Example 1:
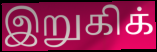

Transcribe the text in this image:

இறுகிக்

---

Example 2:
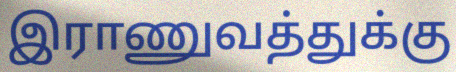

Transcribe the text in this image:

இராணுவத்துக்கு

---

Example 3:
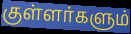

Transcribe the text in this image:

குள்ளர்களும்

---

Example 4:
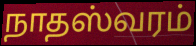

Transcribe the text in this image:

நாதஸ்வரம்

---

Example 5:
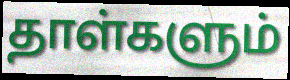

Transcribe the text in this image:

தாள்களும்